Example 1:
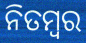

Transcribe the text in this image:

ନିତମ୍ୱର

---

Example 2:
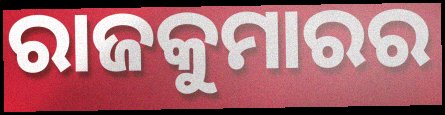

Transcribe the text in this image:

ରାଜକୁମାରର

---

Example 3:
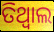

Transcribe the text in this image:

ତିଥ୍ୱାଲ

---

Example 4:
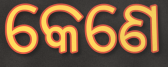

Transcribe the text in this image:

କେଣେ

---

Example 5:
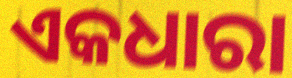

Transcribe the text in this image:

ଏକଧାରା